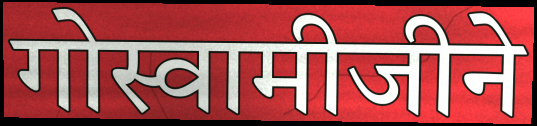
गोस्वामीजीने